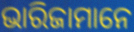
ଭାରିଜାମାନେ